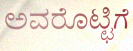
ಅವರೊಟ್ಟಿಗೆ